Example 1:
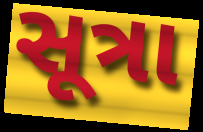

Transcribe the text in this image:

સૂત્રા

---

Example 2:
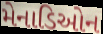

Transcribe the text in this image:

મેનાડિઓન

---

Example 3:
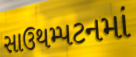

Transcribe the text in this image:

સાઉથમ્પટનમાં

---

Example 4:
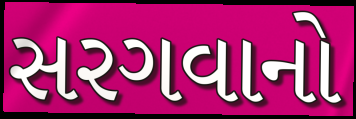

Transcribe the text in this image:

સરગવાનો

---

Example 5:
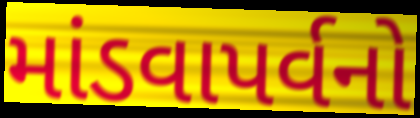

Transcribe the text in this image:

માંડવાપર્વનો